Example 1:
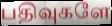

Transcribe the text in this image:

பதிவுகளே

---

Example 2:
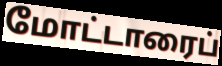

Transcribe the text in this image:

மோட்டாரைப்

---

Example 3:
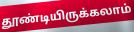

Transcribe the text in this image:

தூண்டியிருக்கலாம்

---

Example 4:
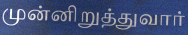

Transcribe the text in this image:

முன்னிறுத்துவார்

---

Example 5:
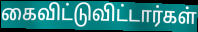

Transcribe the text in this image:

கைவிட்டுவிட்டார்கள்